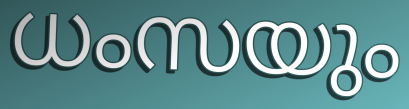
ധംസയും